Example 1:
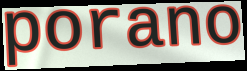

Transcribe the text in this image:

porano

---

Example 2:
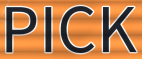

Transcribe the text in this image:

PICK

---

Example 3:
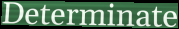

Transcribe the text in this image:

Determinate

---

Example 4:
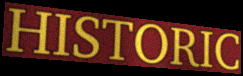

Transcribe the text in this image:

HISTORIC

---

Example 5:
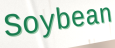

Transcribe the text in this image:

Soybean